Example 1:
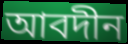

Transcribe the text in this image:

আবদীন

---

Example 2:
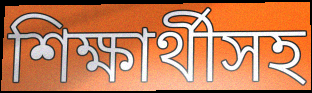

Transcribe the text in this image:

শিক্ষার্থীসহ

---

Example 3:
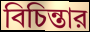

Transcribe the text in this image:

বিচিন্তার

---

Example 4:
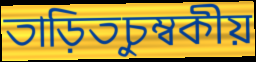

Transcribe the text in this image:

তাড়িতচুম্বকীয়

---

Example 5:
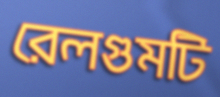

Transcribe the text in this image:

রেলগুমটি